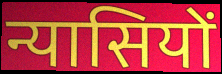
न्यासियों